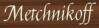
Metchnikoff